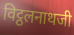
विट्ठलनाथजी